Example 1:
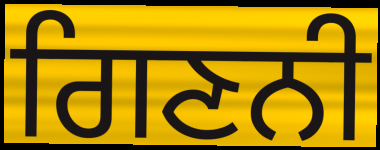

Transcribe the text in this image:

ਗਿਣਨੀ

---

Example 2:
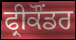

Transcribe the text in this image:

ਫ੍ਰੀਕੌਂਡਰ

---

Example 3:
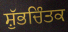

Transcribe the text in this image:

ਸ਼ੁੱਭਚਿੰਤਕ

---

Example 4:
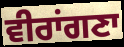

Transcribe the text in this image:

ਵੀਰਾਂਗਣਾ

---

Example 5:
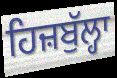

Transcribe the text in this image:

ਹਿਜ਼ਬੁੱਲ੍ਹਾ